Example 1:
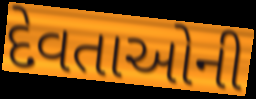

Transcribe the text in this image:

દેવતાઓની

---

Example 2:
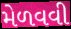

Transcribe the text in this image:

મેળવવી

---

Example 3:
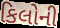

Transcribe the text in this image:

કિલોની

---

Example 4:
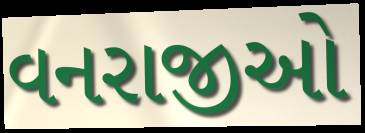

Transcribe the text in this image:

વનરાજીઓ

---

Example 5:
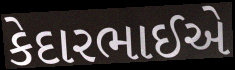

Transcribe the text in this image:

કેદારભાઈએ